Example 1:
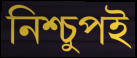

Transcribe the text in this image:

নিশ্চুপই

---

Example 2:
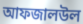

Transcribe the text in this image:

আফজালউল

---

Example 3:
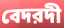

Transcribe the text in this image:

বেদরদী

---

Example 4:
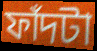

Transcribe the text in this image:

ফাঁদটা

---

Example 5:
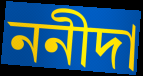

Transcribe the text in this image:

ননীদা